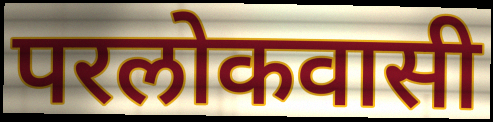
परलोकवासी